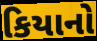
કિયાનો